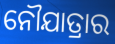
ନୌଯାତ୍ରାର